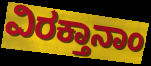
ವಿರಕ್ತಾನಾಂ